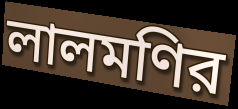
লালমণির